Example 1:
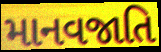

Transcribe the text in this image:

માનવજાતિ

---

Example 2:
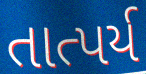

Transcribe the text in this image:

તાત્પર્ય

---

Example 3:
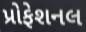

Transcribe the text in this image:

પ્રોફેશનલ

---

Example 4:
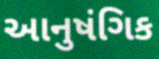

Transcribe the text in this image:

આનુષંગિક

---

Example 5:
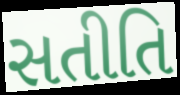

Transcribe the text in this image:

સતીતિ